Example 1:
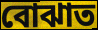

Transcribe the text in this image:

বোঝাত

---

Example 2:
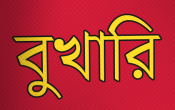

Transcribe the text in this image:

বুখারি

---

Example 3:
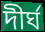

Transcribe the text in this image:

দীর্ঘ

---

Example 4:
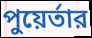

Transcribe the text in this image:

পুয়ের্তার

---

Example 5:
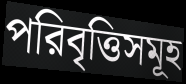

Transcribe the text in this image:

পরিবৃত্তিসমূহ